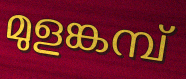
മുളങ്കമ്പ്